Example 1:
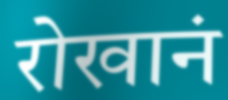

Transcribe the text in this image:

रोखानं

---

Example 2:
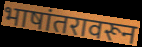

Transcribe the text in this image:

भाषांतरावरून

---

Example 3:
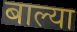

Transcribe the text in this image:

बाल्या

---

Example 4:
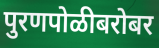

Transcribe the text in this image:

पुरणपोळीबरोबर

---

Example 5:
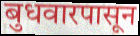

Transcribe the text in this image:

बुधवारपासून